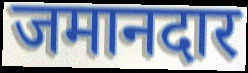
जमानदार